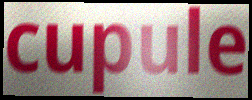
cupule